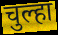
चुल्हा